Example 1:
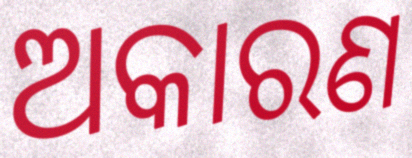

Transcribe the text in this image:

ଅକାରଣ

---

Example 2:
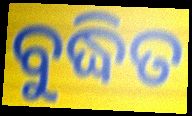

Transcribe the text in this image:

ବୁଦ୍ଧିତ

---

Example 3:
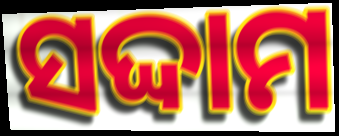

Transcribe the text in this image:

ସଦ୍ଦାମ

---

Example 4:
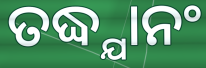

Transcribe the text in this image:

ତଦ୍ଧ୍ଯାନଂ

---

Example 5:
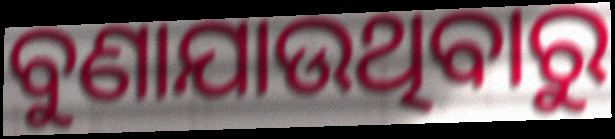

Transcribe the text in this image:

ବୁଣାଯାଉଥିବାରୁ